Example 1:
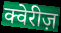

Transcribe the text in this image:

क्वेरीज़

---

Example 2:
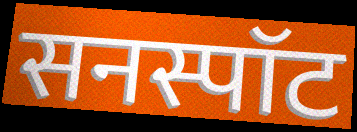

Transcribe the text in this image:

सनस्पॉट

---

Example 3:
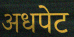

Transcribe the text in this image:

अधपेट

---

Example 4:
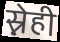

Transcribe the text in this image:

स्नेही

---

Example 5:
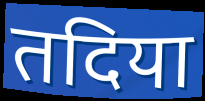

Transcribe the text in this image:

तदिया